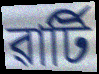
ৱাৰ্টি